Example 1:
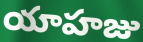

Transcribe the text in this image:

యాహజు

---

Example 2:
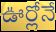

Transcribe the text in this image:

ఊర్లోనే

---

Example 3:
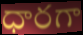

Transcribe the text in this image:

ధారగా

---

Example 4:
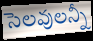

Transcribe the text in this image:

సెలవులన్నీ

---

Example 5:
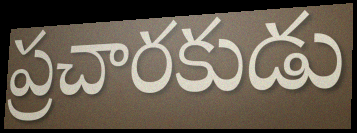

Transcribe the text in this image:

ప్రచారకుడు